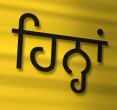
ਹਿਨ੍ਹਾਂ